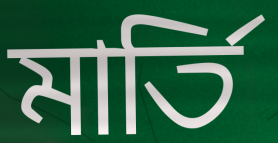
মার্তি